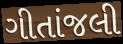
ગીતાંજલી